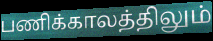
பணிக்காலத்திலும்